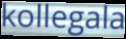
kollegala